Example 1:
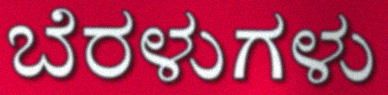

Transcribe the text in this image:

ಬೆರಳುಗಳು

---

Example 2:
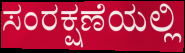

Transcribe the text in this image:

ಸಂರಕ್ಷಣೆಯಲ್ಲಿ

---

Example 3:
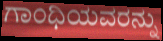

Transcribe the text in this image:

ಗಾಂಧಿಯವರನ್ನು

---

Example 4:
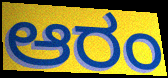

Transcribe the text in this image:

ಆರಂ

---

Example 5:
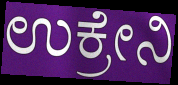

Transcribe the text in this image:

ಉಕ್ರೇನಿ